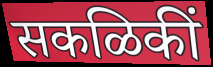
सकळिकीं